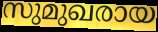
സുമുഖരായ